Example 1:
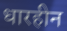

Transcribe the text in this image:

धारहीन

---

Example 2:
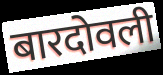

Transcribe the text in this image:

बारदोवली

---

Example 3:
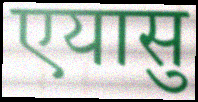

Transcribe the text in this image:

एयासु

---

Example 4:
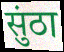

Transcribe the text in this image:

सुंठा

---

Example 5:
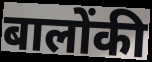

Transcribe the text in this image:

बालोंकी